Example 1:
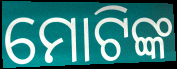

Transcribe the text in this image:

ମୋଟିଙ୍କ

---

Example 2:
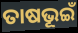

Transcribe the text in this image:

ତାଷଭୂଇଁ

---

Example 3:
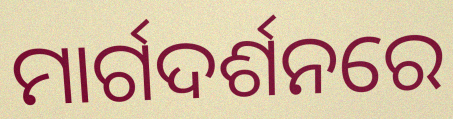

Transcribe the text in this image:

ମାର୍ଗଦର୍ଶନରେ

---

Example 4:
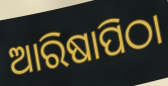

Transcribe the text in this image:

ଆରିଷାପିଠା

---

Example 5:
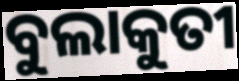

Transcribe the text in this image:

ବୁଲାକୁତୀ